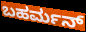
ಬಹರ್ಮನ್